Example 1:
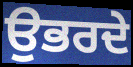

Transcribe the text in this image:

ਉਭਰਦੇ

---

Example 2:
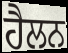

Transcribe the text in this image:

ਹੈਲਨ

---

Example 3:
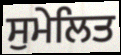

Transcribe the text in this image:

ਸੁਮੇਲਿਤ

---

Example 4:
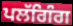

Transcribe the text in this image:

ਪਲੱਗਿੰਗ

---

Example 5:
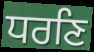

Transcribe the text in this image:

ਧਰਣਿ